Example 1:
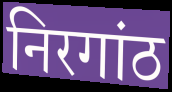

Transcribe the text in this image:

निरगांठ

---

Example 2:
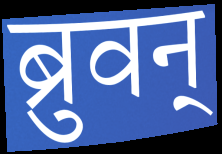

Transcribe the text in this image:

ब्रुवन्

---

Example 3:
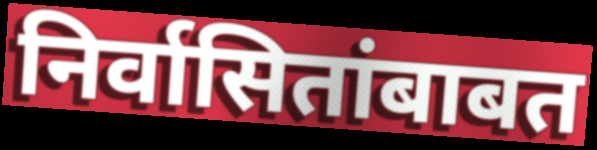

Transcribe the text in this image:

निर्वासितांबाबत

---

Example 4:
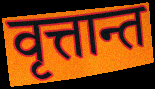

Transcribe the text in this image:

वृत्तान्त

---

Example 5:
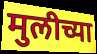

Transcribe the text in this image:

मुलीच्या